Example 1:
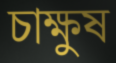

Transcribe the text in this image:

চাক্ষুষ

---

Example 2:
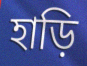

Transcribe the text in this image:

হাড়ি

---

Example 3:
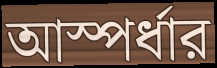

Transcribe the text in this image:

আস্পর্ধার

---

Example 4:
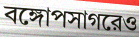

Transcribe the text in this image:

বঙ্গোপসাগরেও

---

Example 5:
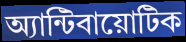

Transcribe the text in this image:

অ্যান্টিবায়োটিক